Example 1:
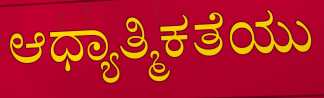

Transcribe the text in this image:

ಆಧ್ಯಾತ್ಮಿಕತೆಯು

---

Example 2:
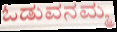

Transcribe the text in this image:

ಓಡುವನಮ್ಮ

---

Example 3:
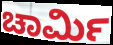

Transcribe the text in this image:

ಚಾರ್ಮಿ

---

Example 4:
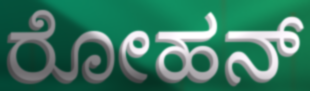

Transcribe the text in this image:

ರೋಹನ್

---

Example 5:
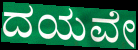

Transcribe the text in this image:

ದಯವೇ